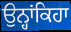
ਉਨ੍ਹਾਂਕਿਹਾ